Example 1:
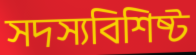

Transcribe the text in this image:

সদস্যবিশিষ্ট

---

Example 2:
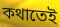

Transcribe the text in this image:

কথাতেই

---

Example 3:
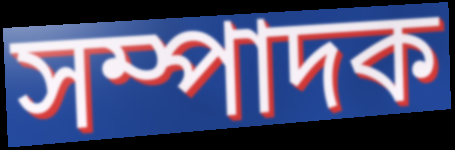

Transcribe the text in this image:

সম্পাদক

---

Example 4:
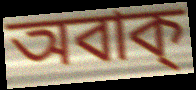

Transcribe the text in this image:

অবাক্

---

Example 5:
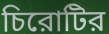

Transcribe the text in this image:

চিরোটির